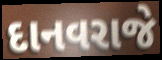
દાનવરાજે